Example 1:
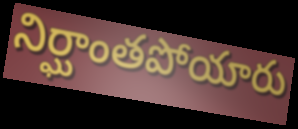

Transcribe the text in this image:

నిర్ఘాంతపోయారు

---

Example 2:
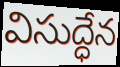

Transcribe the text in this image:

విసుద్ధేన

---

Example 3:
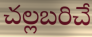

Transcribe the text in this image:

చల్లబరిచే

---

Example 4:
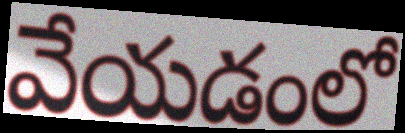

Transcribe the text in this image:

వేయడంలో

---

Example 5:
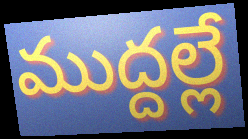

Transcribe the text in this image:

ముద్దల్లే